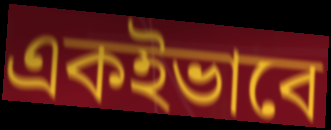
একইভাবে